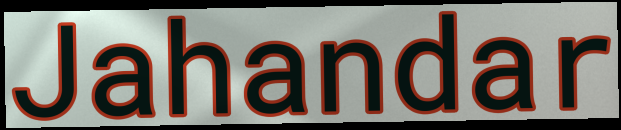
Jahandar